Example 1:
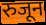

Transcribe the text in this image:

रुजून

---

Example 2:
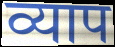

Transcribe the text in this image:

व्याप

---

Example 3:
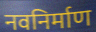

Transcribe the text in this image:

नवनिर्माण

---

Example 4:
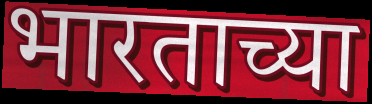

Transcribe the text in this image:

भारताच्या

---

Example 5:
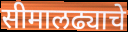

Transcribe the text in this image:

सीमालढ्याचे